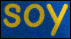
soy